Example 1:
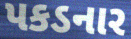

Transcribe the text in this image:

પકડનાર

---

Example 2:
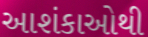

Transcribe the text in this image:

આશંકાઓથી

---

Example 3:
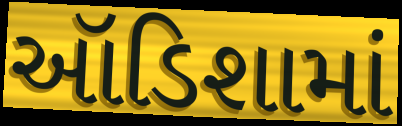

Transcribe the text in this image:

ઑડિશામાં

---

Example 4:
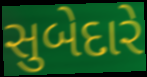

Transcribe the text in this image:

સુબેદારે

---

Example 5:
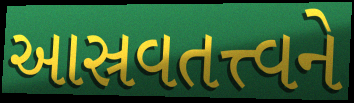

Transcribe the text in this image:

આસ્રવતત્ત્વને